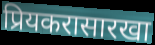
प्रियकरासारखा